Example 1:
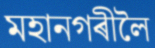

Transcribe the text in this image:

মহানগৰীলৈ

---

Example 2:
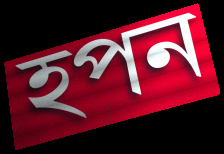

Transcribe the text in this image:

হপন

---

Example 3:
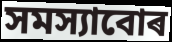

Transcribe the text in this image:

সমস্যাবোৰ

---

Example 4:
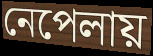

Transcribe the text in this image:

নেপেলায়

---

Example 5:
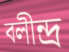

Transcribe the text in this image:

বলীন্দ্ৰ